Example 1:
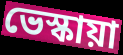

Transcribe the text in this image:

ভেস্কায়া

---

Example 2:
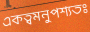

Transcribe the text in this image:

একত্বমনুপশ্যতঃ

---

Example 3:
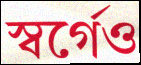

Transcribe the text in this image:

স্বর্গেও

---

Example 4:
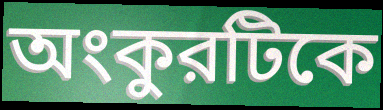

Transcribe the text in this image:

অংকুরটিকে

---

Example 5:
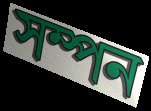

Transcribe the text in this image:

সম্পন